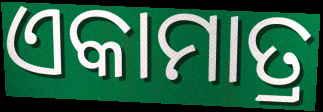
ଏକାମାତ୍ର